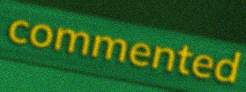
commented